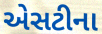
એસટીના